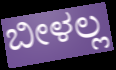
ಬೀಳಲ್ಲ